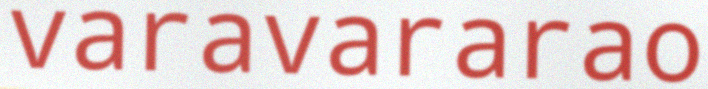
varavararao